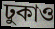
ঢুকাও